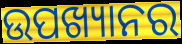
ଉପଖ୍ୟାନର